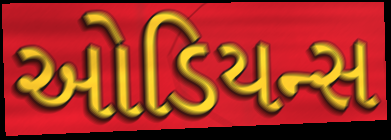
ઓડિયન્સ